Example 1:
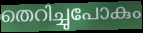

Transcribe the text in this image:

തെറിച്ചുപോകും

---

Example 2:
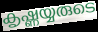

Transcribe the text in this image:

കൃഷ്ണയ്യരുടെ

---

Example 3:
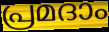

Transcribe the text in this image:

പ്രമദാം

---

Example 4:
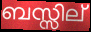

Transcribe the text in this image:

ബസ്സില്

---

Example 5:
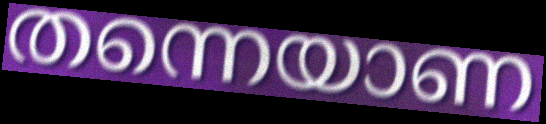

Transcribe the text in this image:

തന്നെയാണ